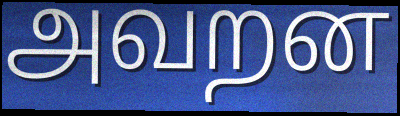
அவறன